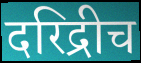
दरिद्रीच